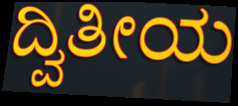
ದ್ವಿತೀಯ